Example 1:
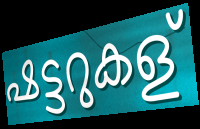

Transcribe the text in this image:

ഷട്ടറുകള്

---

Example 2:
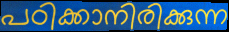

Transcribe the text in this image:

പഠിക്കാനിരിക്കുന്ന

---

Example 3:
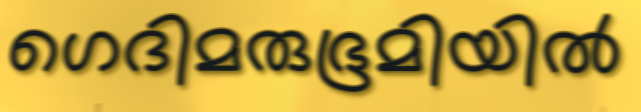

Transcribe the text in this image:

ഗെദിമരുഭൂമിയിൽ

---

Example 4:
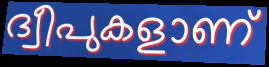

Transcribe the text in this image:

ദ്വീപുകളാണ്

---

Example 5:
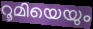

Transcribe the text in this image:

റൂമിയെയും